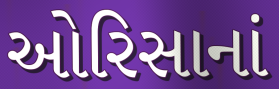
ઓરિસાનાં